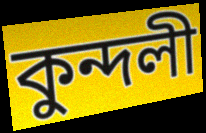
কুন্দলী